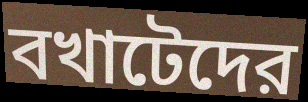
বখাটেদের